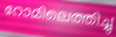
റോമിലെത്തിച്ചു